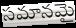
సమానమై